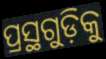
ପ୍ରସ୍ଥଗୁଡ଼ିକୁ